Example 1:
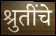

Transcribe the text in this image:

श्रुतींचे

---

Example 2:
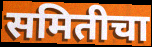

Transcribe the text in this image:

समितीचा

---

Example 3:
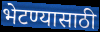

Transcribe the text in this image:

भेटण्यासाठी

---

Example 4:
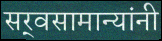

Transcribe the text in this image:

सर्वसामान्यांनी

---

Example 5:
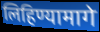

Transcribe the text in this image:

लिहिण्यामागे